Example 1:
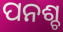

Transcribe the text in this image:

ପନଶ୍ଚ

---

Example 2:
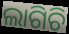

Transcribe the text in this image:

ଲାଗିଚି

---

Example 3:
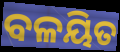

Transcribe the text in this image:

ବଳୟିତ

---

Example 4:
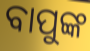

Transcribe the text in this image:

ବାପୁଙ୍କ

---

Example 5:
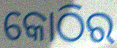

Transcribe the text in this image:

କୋଠିର